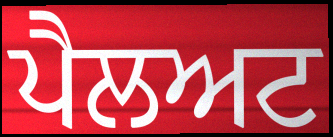
ਪੈਲਅਟ